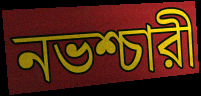
নভশ্চারী